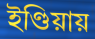
ইণ্ডিয়ায়